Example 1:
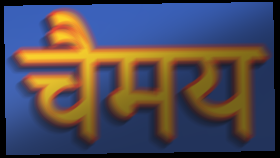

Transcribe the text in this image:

चैमय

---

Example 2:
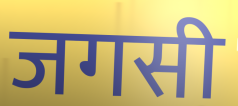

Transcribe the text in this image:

जगसी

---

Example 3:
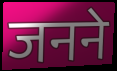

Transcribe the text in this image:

जनने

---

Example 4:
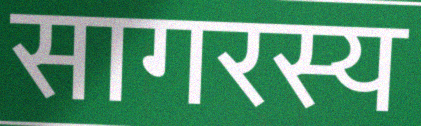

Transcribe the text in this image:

सागरस्य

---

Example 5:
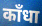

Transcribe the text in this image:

काँधा